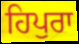
ਹਿਪੁਰਾ